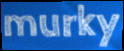
murky